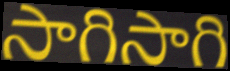
సాగిసాగి